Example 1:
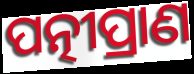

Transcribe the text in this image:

ପତ୍ନୀପ୍ରାଣ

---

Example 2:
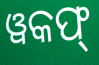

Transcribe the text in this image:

ୱକଫ୍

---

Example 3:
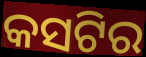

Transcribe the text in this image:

କସଟିର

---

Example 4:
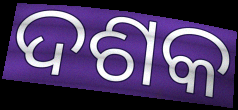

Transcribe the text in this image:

ଦଶକ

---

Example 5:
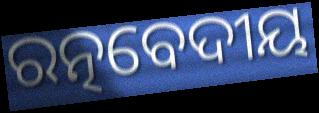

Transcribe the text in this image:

ରତ୍ନବେଦୀୟ